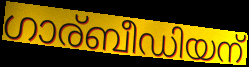
ഗാര്ബീഡിയന്